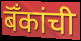
बॅँकांची